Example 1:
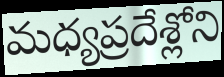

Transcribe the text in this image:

మధ్యప్రదేశ్లోని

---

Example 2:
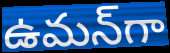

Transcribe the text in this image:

ఉమన్‌గా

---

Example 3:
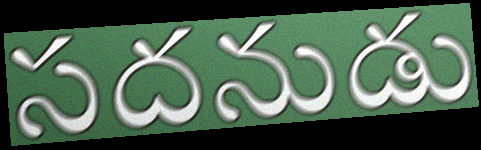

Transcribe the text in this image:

సదనుడు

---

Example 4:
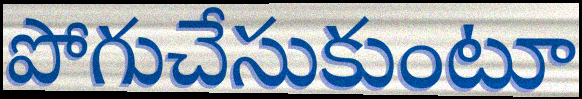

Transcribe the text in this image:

పోగుచేసుకుంటూ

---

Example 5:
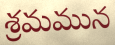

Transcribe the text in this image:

శ్రమమున